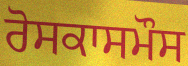
ਰੋਸਕਾਸਮੌਸ